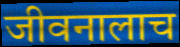
जीवनालाच